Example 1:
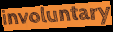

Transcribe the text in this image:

involuntary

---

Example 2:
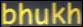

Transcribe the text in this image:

bhukh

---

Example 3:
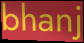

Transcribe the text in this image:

bhanj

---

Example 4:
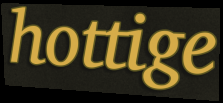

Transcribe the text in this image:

hottige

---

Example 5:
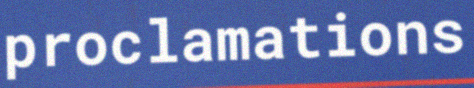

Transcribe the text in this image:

proclamations